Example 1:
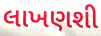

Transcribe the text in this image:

લાખણશી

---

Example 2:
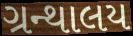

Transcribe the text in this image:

ગ્રન્થાલય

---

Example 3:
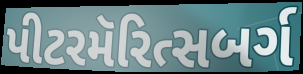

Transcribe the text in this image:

પીટરમૅરિત્સબર્ગ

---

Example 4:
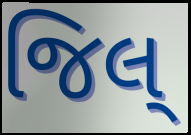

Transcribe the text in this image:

જિલ્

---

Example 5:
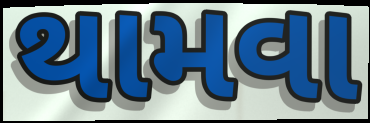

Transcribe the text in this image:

થામવા